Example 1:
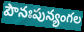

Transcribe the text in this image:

పౌనఃపున్యంగల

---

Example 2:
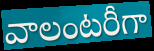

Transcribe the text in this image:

వాలంటరీగా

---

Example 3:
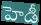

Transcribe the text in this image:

హెడీ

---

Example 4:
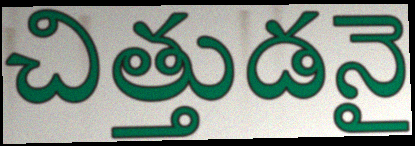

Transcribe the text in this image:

చిత్తుడనై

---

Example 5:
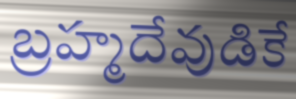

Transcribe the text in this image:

బ్రహ్మదేవుడికే